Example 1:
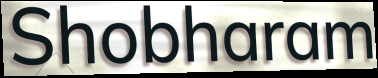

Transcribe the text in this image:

Shobharam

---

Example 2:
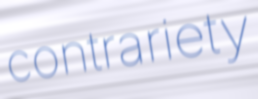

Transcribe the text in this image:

contrariety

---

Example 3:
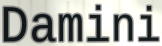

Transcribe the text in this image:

Damini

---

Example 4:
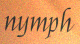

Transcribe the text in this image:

nymph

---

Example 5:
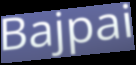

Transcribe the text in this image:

Bajpai